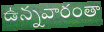
ఉన్నవారంతా